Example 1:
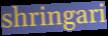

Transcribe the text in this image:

shringari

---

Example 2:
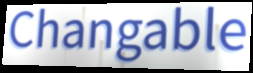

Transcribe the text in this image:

Changable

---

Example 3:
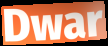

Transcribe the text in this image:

Dwar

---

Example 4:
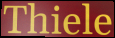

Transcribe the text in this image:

Thiele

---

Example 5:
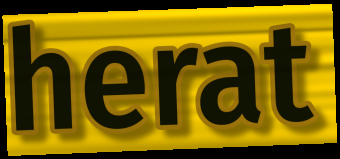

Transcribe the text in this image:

herat